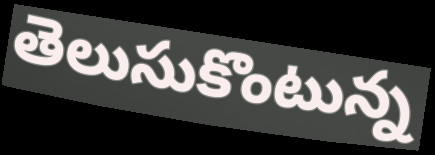
తెలుసుకొంటున్న